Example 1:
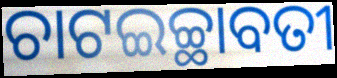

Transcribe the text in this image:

ଚାଟଇଚ୍ଛାବତୀ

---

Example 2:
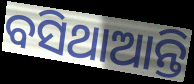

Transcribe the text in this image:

ବସିଥାଆନ୍ତି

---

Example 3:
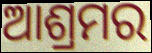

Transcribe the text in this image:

ଆଶ୍ରମର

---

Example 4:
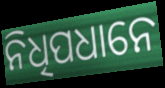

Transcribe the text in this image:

ନିଧିପଧାନେ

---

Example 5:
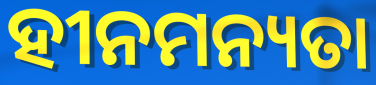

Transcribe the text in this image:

ହୀନମନ୍ୟତା